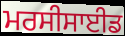
ਮਰਸੀਸਾਈਡ